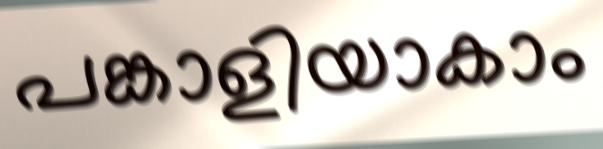
പങ്കാളിയാകാം